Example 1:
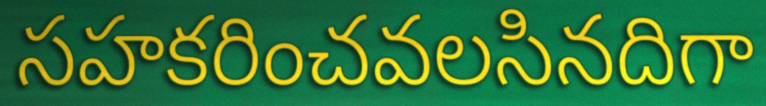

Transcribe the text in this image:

సహకరించవలసినదిగా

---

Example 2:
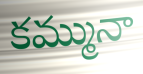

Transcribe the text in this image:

కమ్మునా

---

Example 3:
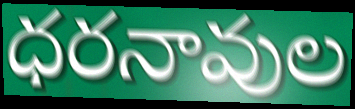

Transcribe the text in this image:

ధరనావుల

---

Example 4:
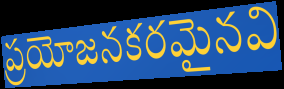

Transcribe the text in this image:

ప్రయోజనకరమైనవి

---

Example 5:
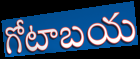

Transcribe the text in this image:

గోటాబయ